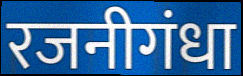
रजनीगंधा